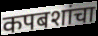
कपबशांचा